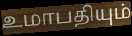
உமாபதியும்